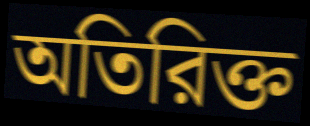
অতিরিক্ত